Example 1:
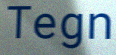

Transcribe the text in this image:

Tegn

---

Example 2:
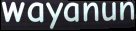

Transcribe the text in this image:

wayanun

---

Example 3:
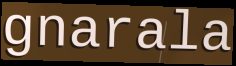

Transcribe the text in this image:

gnarala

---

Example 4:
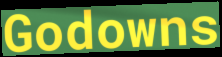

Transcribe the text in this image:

Godowns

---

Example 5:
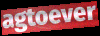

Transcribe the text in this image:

agtoever